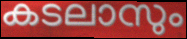
കടലാസും